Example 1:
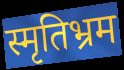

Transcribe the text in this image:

स्मृतिभ्रम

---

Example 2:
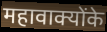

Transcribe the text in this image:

महावाक्योंके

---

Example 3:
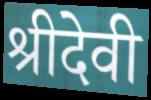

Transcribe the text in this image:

श्रीदेवी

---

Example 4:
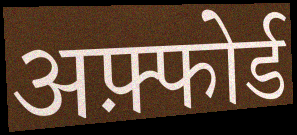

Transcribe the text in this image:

अफ़्फोर्ड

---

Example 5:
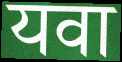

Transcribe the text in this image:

यवा